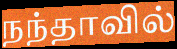
நந்தாவில்